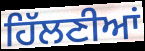
ਹਿੱਲਣੀਆਂ